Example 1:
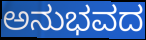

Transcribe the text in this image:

ಅನುಭವದ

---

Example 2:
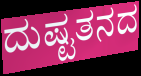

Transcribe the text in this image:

ದುಷ್ಟತನದ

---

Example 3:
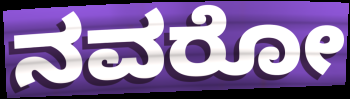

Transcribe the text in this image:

ನವರೋ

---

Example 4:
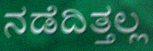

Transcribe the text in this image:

ನಡೆದಿತ್ತಲ್ಲ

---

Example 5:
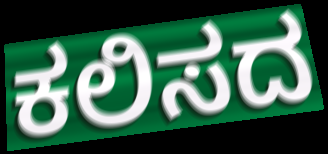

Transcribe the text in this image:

ಕಲಿಸದ